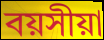
বয়সীয়া